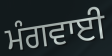
ਮੰਗਵਾਈ